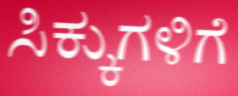
ಸಿಕ್ಕುಗಳಿಗೆ